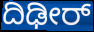
ದಿಢೀರ್